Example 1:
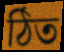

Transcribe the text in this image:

ঠিত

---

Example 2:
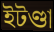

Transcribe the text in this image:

ইটণ্ডা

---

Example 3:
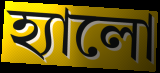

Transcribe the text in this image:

হ্যালো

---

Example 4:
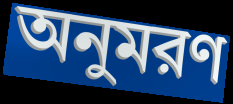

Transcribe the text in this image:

অনুমরণ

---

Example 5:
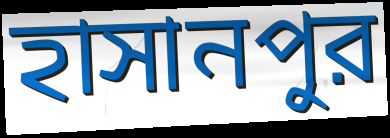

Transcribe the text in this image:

হাসানপুর